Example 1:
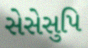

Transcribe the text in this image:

સેસેસુપિ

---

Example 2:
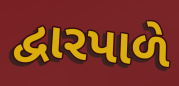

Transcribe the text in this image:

દ્વારપાળે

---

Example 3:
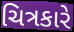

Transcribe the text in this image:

ચિત્રકારે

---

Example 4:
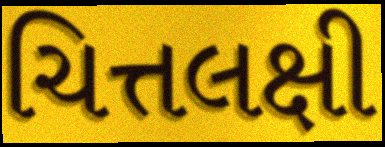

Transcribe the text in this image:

ચિત્તલક્ષી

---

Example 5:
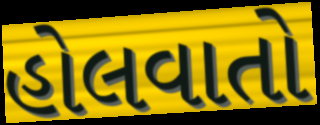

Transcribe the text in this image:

હોલવાતો